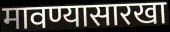
मावण्यासारखा